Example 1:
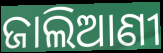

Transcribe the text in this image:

ଜାଲିଆଣୀ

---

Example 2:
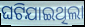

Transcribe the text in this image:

ଘଟିଯାଇଥିଲା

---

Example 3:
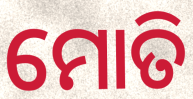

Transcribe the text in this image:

ମୋତି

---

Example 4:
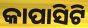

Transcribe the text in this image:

କାପାସିଟି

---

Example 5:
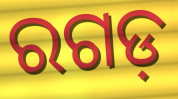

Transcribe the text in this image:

ରଗଡ଼